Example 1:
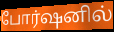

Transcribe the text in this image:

போர்ஷனில்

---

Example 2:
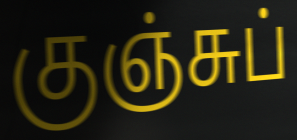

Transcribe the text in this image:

குஞ்சுப்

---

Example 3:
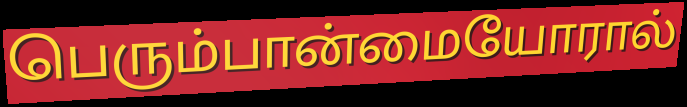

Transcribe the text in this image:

பெரும்பான்மையோரால்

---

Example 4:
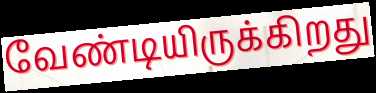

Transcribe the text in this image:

வேண்டியிருக்கிறது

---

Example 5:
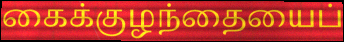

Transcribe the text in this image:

கைக்குழந்தையைப்